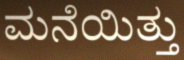
ಮನೆಯಿತ್ತು